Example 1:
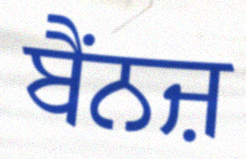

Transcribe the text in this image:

ਬੈਂਨਜ਼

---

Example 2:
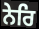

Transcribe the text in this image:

ਨੇਰਿ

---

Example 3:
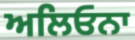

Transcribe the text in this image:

ਅਲਿਓਨਾ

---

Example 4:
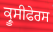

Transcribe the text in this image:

ਕ੍ਰੂਸੀਫੇਰਸ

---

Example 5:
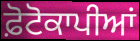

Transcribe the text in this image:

ਫ਼ੋਟੋਕਾਪੀਆਂ